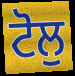
ਟੋਲੁ